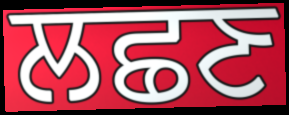
ਲਛਣ